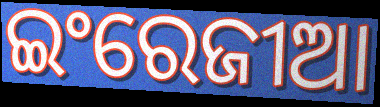
ଇଂରେଜୀଆ